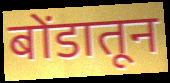
बोंडातून